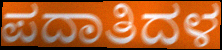
ಪದಾತಿದಳ